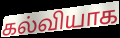
கல்வியாக